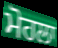
ਮੋਹਲਾ